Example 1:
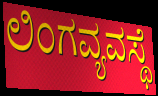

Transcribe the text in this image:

ಲಿಂಗವ್ಯವಸ್ಥೆ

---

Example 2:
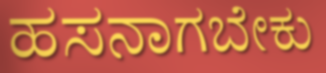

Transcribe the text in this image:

ಹಸನಾಗಬೇಕು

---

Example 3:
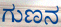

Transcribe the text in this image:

ಗುಣನ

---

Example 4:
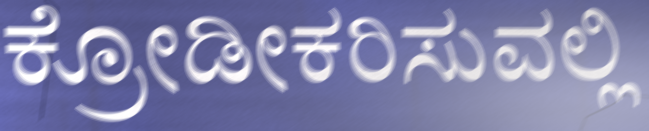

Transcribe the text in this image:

ಕ್ರೋಡೀಕರಿಸುವಲ್ಲಿ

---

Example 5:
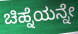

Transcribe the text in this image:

ಚಿಹ್ನೆಯನ್ನೇ